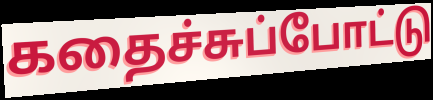
கதைச்சுப்போட்டு